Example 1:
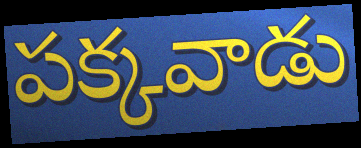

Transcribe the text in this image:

పక్కవాడు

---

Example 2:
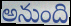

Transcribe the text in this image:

అనుంది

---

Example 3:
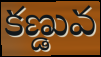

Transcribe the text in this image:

కణ్డువ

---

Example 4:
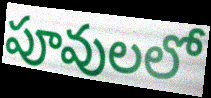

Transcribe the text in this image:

పూవులలో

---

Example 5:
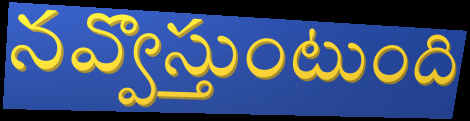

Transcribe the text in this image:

నవ్వొస్తుంటుంది